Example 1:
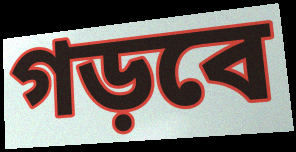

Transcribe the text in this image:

গড়বে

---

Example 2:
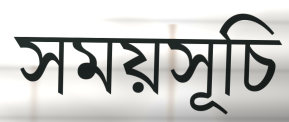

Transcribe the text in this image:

সময়সূচি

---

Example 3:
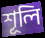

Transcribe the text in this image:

শূলি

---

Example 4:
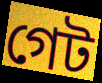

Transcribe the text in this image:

গেট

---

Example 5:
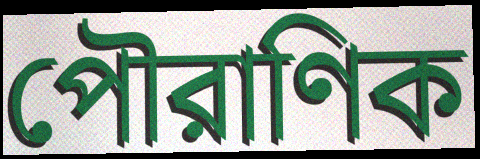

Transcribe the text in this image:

পৌরাণিক